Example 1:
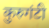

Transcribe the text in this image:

कुरुगंटी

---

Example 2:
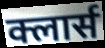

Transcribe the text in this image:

क्लार्स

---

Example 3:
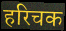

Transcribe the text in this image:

हरिचक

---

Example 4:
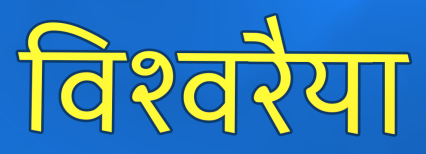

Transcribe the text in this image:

विश्वरैया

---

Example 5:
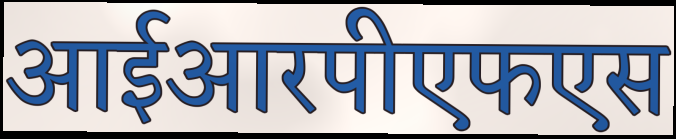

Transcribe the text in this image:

आईआरपीएफएस